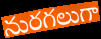
నురగలుగా